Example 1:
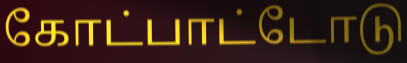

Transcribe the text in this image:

கோட்பாட்டோடு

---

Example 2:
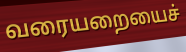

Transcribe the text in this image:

வரையறையைச்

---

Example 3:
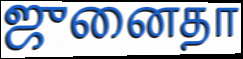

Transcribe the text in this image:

ஜுனைதா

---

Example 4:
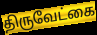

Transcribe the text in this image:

திருவேட்கை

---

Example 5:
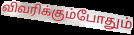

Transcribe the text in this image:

விவரிக்கும்போதும்